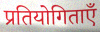
प्रतियोगिताएँ